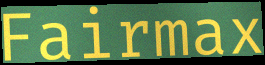
Fairmax